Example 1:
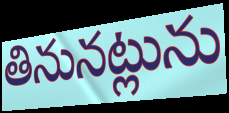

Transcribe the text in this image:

తినునట్లును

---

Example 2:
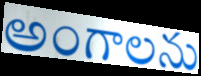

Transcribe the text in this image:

అంగాలను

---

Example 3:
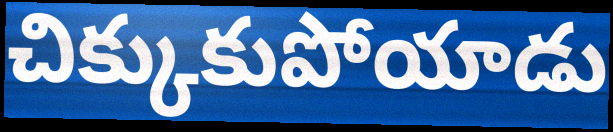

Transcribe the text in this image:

చిక్కుకుపోయాడు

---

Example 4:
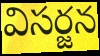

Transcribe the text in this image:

విసర్జన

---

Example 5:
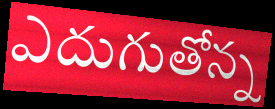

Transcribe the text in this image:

ఎదుగుతోన్న